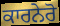
ਕਾਰਨੇਰੋ